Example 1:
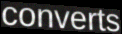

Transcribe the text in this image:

converts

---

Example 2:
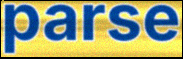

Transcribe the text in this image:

parse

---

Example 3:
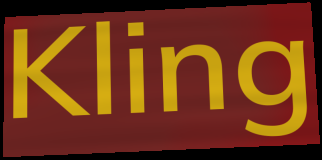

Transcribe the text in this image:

Kling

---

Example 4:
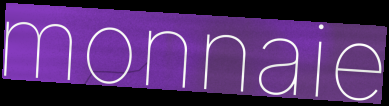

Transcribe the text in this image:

monnaie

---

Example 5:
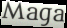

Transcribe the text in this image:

Maga